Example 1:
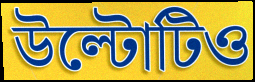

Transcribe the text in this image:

উল্টোটিও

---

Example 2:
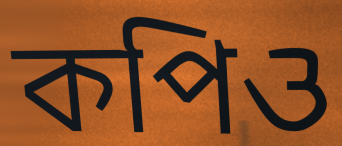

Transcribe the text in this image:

কপিও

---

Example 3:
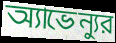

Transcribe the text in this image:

অ্যাভেন্যুর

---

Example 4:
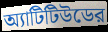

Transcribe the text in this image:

অ্যাটিটিউডের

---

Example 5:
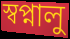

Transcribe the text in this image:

স্বপ্নালু